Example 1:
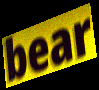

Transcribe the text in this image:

bear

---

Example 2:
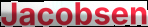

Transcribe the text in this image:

Jacobsen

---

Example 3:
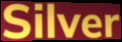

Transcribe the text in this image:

Silver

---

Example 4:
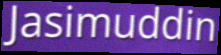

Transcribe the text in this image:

Jasimuddin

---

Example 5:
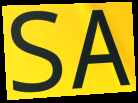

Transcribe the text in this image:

SA